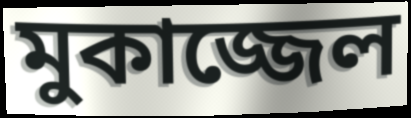
মুকাজ্জেল